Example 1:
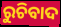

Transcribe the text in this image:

ରୁଚିବାଦ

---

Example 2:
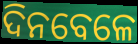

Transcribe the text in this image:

ଦିନବେଳେ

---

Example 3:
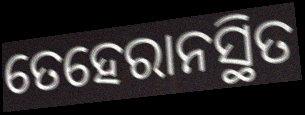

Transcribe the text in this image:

ତେହେରାନସ୍ଥିତ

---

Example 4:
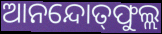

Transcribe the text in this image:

ଆନନ୍ଦୋତ୍‍ଫୁଲ୍ଲ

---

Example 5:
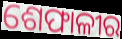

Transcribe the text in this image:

ଶେଫାଳୀର